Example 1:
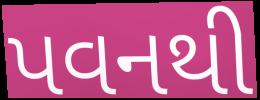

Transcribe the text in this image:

પવનથી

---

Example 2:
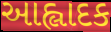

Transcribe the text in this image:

આહ્લાદક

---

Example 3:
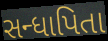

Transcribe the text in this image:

સન્ધાપિતા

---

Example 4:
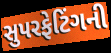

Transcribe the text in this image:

સુપરફેટિંગની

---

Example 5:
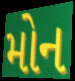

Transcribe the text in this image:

મોન